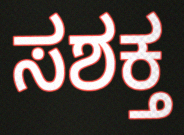
ಸಶಕ್ತ